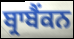
ਬ੍ਰਾਬੈਂਕਨ